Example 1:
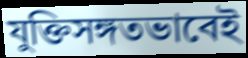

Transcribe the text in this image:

যুক্তিসঙ্গতভাবেই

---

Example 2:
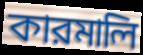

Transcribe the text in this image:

কারমালি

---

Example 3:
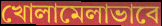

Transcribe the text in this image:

খোলামেলাভাবে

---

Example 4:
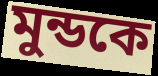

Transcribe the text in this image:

মুন্ডকে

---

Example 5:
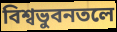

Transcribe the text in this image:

বিশ্বভুবনতলে